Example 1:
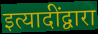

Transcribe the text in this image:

इत्यादींद्वारा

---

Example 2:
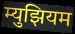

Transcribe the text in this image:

म्युझियम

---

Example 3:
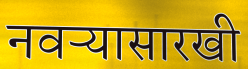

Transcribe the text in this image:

नवऱ्यासारखी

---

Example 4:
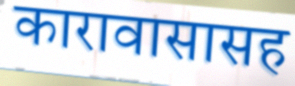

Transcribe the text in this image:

कारावासासह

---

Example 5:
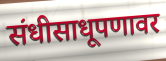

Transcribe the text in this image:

संधीसाधूपणावर